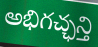
అభిగచ్ఛన్తి